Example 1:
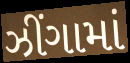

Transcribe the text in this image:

ઝીંગામાં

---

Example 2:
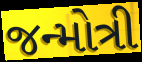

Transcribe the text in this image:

જન્મોત્રી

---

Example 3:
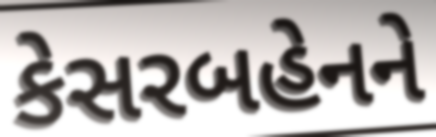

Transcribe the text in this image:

કેસરબહેનને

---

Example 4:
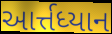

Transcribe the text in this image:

આર્ત્તધ્યાન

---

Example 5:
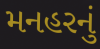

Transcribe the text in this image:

મનહરનું